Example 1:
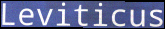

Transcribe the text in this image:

Leviticus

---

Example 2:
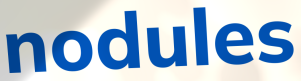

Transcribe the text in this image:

nodules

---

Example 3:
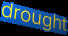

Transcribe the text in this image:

drought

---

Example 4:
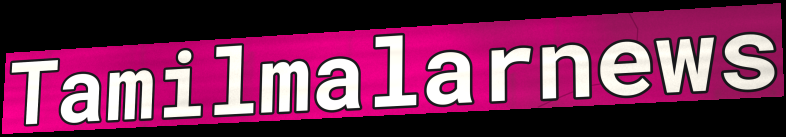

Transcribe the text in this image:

Tamilmalarnews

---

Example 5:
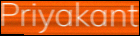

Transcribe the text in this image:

Priyakant